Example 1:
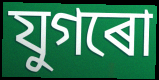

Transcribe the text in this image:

যুগৰো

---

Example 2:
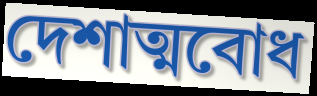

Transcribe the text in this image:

দেশাত্মবোধ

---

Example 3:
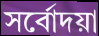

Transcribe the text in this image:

সৰ্বোদয়া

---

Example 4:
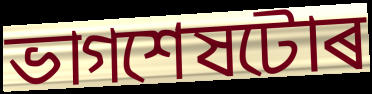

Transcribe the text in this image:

ভাগশেষটোৰ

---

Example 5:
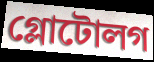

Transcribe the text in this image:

গ্লোটোলগ